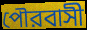
পৌরবাসী